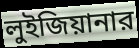
লুইজিয়ানার